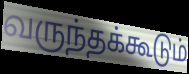
வருந்தக்கூடும்